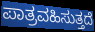
ಪಾತ್ರವಹಿಸುತ್ತದೆ